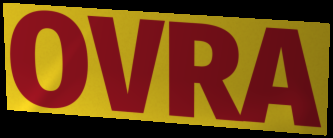
OVRA